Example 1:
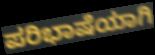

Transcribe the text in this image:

ಪರಿಭಾಷೆಯಾಗಿ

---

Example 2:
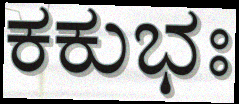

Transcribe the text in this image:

ಕಕುಭಃ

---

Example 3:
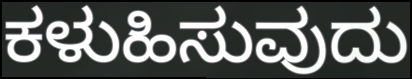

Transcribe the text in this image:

ಕಳುಹಿಸುವುದು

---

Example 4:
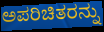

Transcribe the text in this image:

ಅಪರಿಚಿತರನ್ನು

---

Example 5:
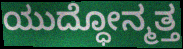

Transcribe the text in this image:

ಯುದ್ಧೋನ್ಮತ್ತ